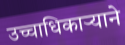
उच्चाधिकाऱ्याने